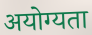
अयोग्यता